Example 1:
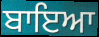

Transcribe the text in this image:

ਬਾਇਆ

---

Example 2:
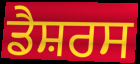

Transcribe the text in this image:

ਡੈਸ਼ਰਸ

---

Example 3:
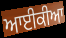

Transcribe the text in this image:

ਆਈਕੀਆ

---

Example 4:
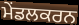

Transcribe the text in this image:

ਮੇਂਡਲਕਰਨ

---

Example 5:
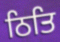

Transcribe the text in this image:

ਠਿਤਿ